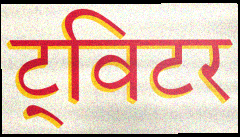
ट्‌विटर